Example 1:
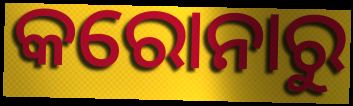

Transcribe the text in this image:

କରୋନାରୁ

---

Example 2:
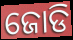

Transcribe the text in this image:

ଜୋଡି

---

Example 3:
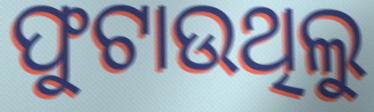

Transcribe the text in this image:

ଫୁଟାଉଥିଲୁ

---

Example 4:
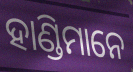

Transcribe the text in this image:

ହାଣ୍ଡିମାନେ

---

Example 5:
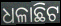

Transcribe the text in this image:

ଧଳାଛିଟ